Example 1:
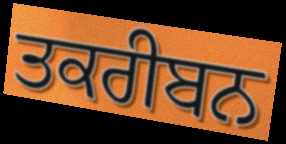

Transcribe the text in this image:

ਤਕਰੀਬਨ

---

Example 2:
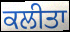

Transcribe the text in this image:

ਕਲੀਤਾ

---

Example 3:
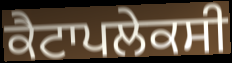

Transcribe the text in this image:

ਕੈਟਾਪਲੇਕਸੀ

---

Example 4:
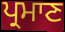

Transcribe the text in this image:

ਪ੍ਰਮਾਣ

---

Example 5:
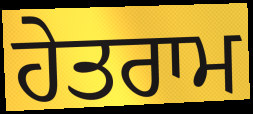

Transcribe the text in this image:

ਹੇਤਰਾਮ